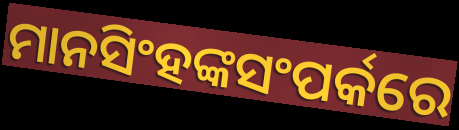
ମାନସିଂହଙ୍କସଂପର୍କରେ